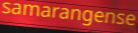
samarangense